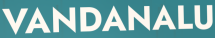
VANDANALU